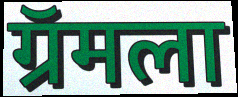
ग्रॅमला